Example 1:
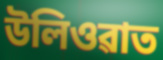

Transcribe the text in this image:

উলিওৱাত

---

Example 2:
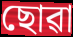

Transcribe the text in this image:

ছোৱা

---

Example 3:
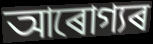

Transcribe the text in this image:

আৰোগ্যৰ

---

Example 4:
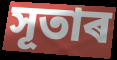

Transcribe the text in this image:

সূতাৰ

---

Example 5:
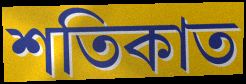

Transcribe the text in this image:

শতিকাত